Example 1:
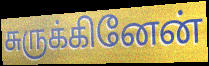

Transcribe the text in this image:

சுருக்கினேன்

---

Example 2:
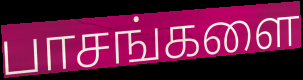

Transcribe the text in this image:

பாசங்களை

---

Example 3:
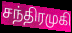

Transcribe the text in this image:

சந்திரமுகி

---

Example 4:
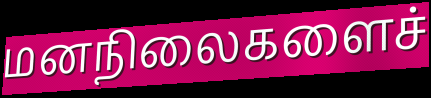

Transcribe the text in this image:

மனநிலைகளைச்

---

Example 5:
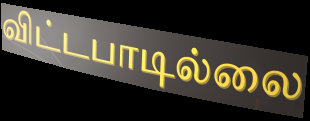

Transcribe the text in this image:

விட்டபாடில்லை